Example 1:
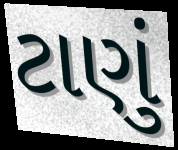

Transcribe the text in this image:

ટાણું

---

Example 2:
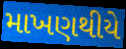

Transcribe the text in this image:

માખણથીયે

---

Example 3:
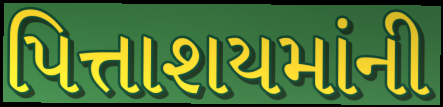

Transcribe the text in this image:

પિત્તાશયમાંની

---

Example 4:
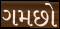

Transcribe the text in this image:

ગમછો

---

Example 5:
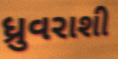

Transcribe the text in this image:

ધ્રુવરાશી